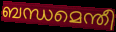
ബന്ധമെന്തീ